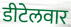
डीटेलवार